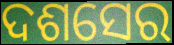
ଦଶସେର